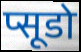
प्सूडो